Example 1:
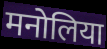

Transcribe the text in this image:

मनोलिया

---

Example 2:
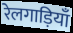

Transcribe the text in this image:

रेलगाड़ियाँ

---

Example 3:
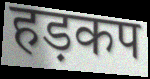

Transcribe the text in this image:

हड़कप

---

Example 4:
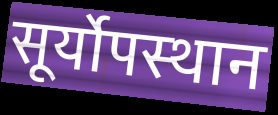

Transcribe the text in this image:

सूर्योपस्थान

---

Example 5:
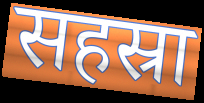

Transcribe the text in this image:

सहस्रा